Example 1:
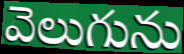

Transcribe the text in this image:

వెలుగును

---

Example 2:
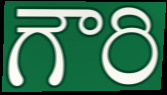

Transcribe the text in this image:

గౌరి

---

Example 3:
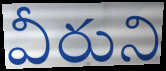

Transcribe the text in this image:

వీరుని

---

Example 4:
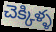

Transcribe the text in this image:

చెక్కిళ్ళ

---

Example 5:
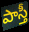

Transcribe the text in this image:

పాస్తీ